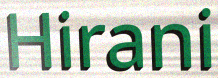
Hirani